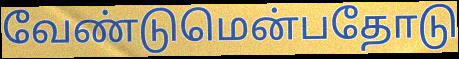
வேண்டுமென்பதோடு